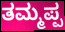
ತಮ್ಮಪ್ಪ